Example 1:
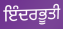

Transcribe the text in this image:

ਇੰਦਰਭੂਤੀ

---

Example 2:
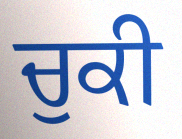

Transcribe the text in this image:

ਚੁਕੀ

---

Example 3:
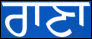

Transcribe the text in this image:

ਰਾਣਾ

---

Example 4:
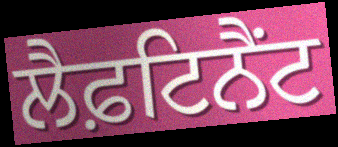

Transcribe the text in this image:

ਲੈਫ਼ਟਿਨੈਂਟ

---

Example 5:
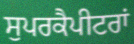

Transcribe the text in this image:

ਸੁਪਰਕੈਪੀਟਰਾਂ